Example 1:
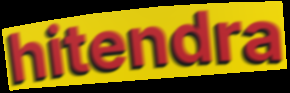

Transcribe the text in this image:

hitendra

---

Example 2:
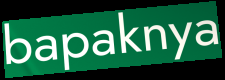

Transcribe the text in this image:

bapaknya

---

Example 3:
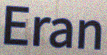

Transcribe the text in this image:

Eran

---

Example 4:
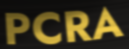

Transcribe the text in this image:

PCRA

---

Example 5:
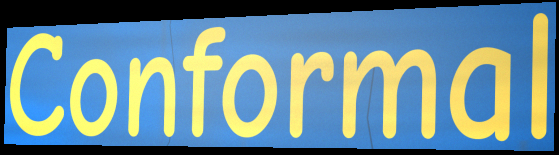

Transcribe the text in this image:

Conformal